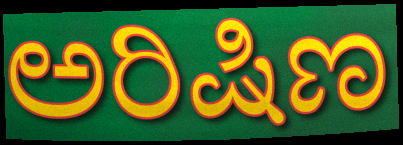
ಅರಿಷಿಣ